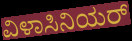
ವಿಳಾಸಿನಿಯರ್